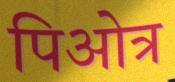
पिओत्र